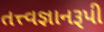
તત્ત્વજ્ઞાનરૂપી